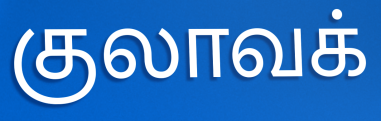
குலாவக்